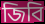
জিবি